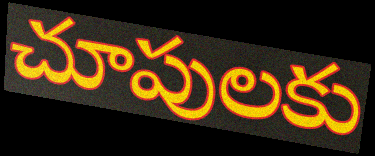
చూపులకు